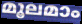
മൂലമാം